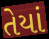
તેયાં